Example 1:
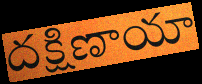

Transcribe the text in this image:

దక్షిణాయా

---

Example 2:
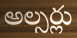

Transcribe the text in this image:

అల్సర్లు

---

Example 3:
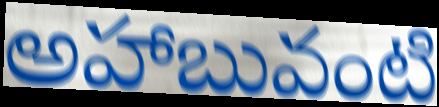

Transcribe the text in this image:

అహాబువంటి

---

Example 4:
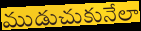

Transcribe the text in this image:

ముడుచుకునేలా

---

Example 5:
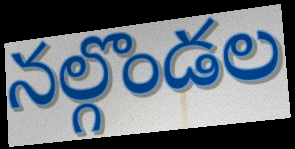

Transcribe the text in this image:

నల్గొండల